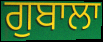
ਗੁਬਾਲਾ